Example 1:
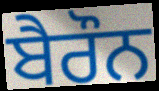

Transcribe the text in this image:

ਬੈਰੌਨ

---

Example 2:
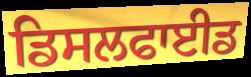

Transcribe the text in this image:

ਡਿਸਲਫਾਈਡ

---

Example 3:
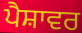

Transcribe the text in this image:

ਪੈਸ਼ਾਵਰ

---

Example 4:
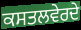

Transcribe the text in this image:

ਕਸਤਲਵੇਰਦੇ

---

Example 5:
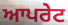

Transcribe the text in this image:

ਆਪਰੇਟ